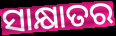
ସାକ୍ଷାତର